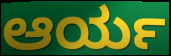
ಆರ್ಯ